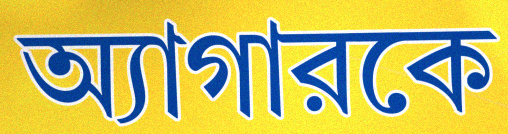
অ্যাগারকে